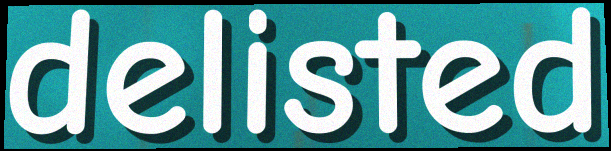
delisted